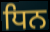
ਧਿਨ